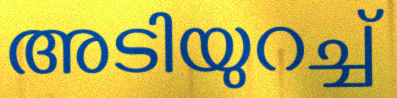
അടിയുറച്ച്